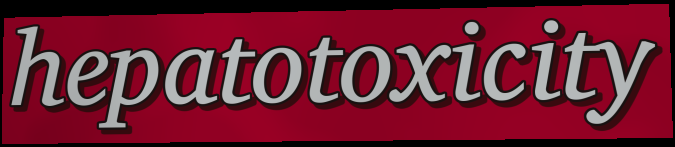
hepatotoxicity